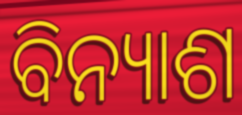
ବିନ୍ୟାଶ